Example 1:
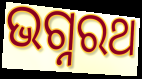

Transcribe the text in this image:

ଭଗ୍ନରଥ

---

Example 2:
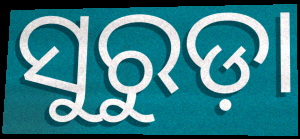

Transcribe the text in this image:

ସୁରୁଡ଼ା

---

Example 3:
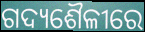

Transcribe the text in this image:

ଗଦ୍ୟଶୈଳୀରେ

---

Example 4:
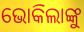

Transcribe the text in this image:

ଭୋକିଲାଙ୍କୁ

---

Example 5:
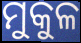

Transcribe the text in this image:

ମୁକୁଳ